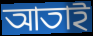
আতাই